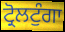
ਟ੍ਰੋਲਟੁੰਗਾ